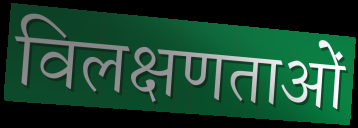
विलक्षणताओं